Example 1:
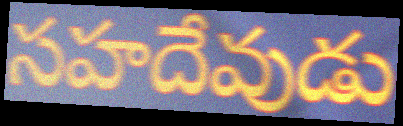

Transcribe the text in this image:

సహదేవుడు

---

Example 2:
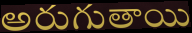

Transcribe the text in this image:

అరుగుతాయి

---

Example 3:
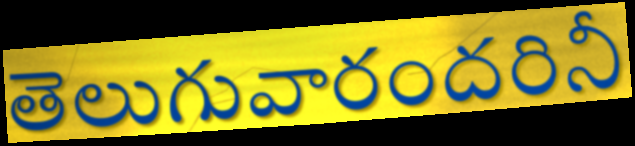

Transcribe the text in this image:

తెలుగువారందరినీ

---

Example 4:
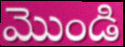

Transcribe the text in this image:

మొండి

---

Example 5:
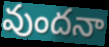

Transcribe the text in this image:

వుందనా